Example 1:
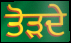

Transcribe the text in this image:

ਤੋੜਦੇ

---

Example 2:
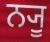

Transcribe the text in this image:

ਨ੍ਯੂ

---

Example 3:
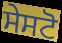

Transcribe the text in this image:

ਸੇਸਟੋ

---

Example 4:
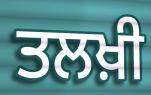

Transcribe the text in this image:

ਤਲਖ਼ੀ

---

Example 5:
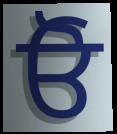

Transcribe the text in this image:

ਓੋ